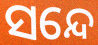
ସନ୍ଦେ